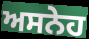
ਅਸਨੇਹ